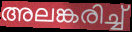
അലങ്കരിച്ച്